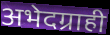
अभेदग्राही